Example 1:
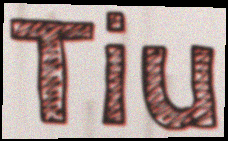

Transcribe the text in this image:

Tiu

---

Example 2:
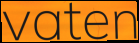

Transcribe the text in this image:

vaten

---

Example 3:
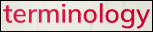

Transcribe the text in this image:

terminology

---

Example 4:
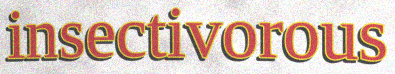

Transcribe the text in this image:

insectivorous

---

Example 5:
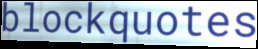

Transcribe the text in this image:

blockquotes